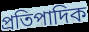
প্রতিপাদিক